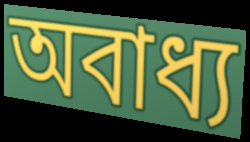
অবাধ্য